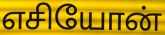
எசியோன்